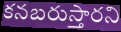
కనబరుస్తారని